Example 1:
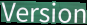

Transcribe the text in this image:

Version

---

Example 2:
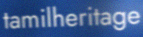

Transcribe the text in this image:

tamilheritage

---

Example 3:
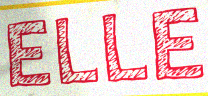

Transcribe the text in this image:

ELLE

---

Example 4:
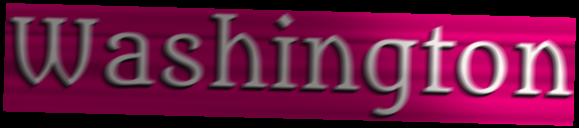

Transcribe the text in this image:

Washington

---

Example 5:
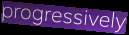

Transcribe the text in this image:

progressively